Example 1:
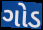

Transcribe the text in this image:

ગોડ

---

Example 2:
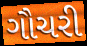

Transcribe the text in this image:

ગૌચરી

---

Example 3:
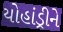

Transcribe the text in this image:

યોહાંડ્રીને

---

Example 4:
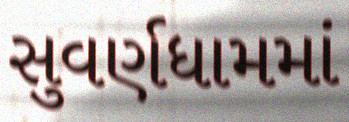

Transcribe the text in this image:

સુવર્ણધામમાં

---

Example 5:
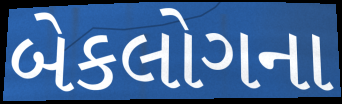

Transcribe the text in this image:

બેકલોગના